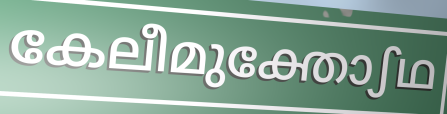
കേലീമുക്തോഽഥ